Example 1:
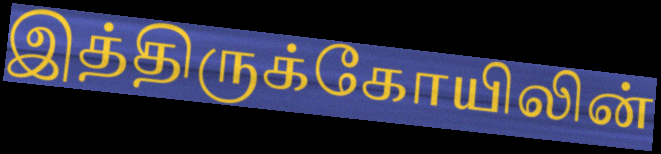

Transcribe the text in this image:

இத்திருக்கோயிலின்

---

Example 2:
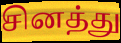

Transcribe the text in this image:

சினத்து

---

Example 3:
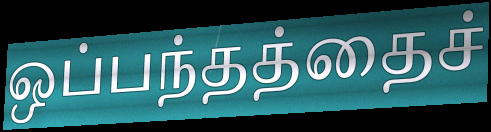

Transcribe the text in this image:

ஒப்பந்தத்தைச்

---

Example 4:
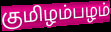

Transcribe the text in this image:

குமிழம்பழம்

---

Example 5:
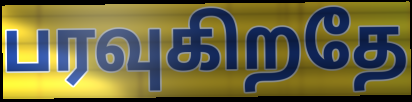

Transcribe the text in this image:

பரவுகிறதே